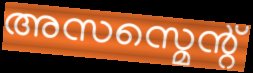
അസസ്മെന്റ്